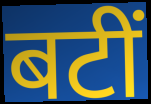
बटीं